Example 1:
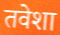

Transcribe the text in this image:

तवेशा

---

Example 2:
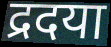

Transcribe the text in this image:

द्रदया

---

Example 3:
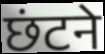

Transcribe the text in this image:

छंटने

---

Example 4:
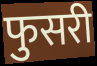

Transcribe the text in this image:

फुसरी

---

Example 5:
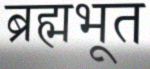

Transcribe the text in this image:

ब्रह्मभूत